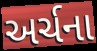
અર્ચના